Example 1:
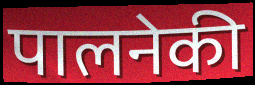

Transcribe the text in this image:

पालनेकी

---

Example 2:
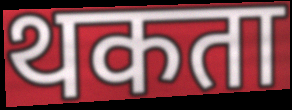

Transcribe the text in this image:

थकता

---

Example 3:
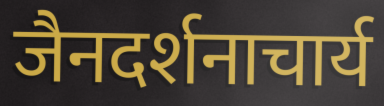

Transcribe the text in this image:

जैनदर्शनाचार्य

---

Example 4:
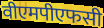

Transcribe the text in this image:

वीएमपीएफसी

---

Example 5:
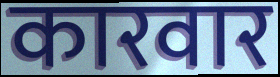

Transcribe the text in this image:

कारवार